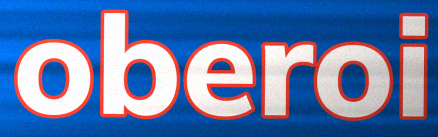
oberoi